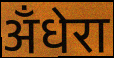
अँधेरा